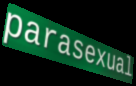
parasexual